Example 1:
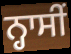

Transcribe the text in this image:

ਨ੍ਹਾਸੀਂ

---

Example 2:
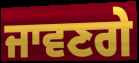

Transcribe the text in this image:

ਜਾਵਣਗੇ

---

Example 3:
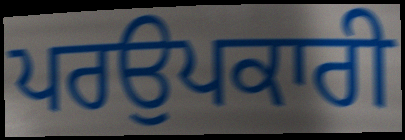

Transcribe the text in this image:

ਪਰਉਪਕਾਰੀ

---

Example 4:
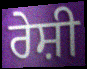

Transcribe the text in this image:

ਰੇਸ਼ੀ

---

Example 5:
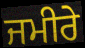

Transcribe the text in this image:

ਜਮੀਰੇ